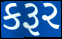
કરૂર